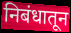
निबंधातून